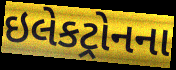
ઇલેકટ્રોનના